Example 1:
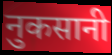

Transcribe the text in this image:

नुकसानी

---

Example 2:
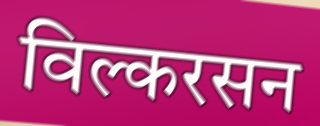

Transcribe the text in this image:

विल्करसन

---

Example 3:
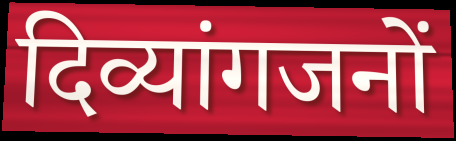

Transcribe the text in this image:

दिव्यांगजनों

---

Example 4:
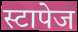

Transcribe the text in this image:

स्टापेज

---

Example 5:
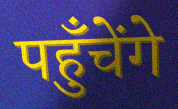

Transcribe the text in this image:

पहुँचेंगे